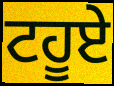
ਟਹੂਏ